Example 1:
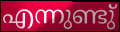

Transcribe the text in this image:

എന്നുണ്ടു്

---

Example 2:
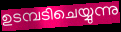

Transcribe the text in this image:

ഉടമ്പടിചെയ്യുന്നു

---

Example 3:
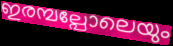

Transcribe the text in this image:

ഇരമ്പല്പോലെയും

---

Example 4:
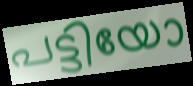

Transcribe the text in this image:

പട്ടിയോ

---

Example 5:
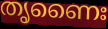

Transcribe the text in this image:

തൃണൈഃ